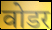
वोडर